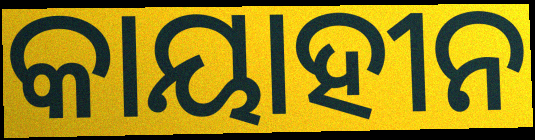
କାୟାହୀନ